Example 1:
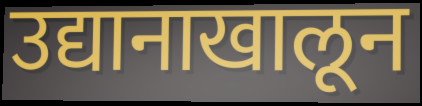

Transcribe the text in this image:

उद्यानाखालून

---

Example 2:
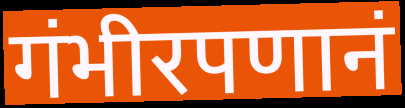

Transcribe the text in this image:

गंभीरपणानं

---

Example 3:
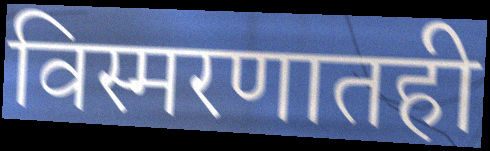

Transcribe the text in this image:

विस्मरणातही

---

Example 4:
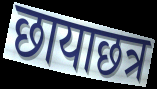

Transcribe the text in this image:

छायाछत्र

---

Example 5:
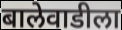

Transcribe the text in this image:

बालेवाडीला